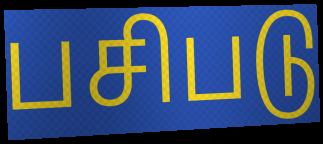
பசிபடு